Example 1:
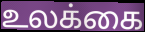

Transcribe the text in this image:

உலக்கை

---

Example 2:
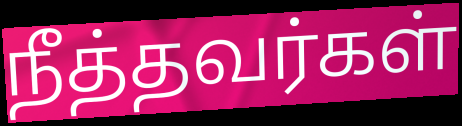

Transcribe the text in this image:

நீத்தவர்கள்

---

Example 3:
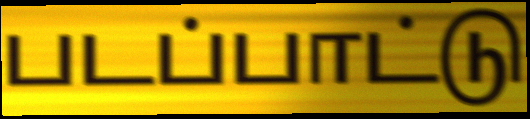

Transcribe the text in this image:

படப்பாட்டு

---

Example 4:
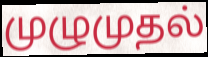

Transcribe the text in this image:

முழுமுதல்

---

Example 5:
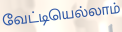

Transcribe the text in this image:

வேட்டியெல்லாம்